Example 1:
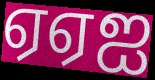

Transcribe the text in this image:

ஏஏஐ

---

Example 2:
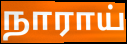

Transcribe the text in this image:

நாராய்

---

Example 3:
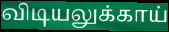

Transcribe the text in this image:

விடியலுக்காய்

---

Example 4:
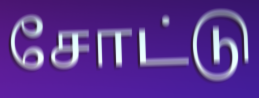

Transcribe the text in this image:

சோட்டு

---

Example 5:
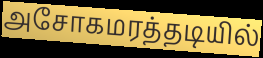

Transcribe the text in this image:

அசோகமரத்தடியில்